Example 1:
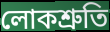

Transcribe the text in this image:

লোকশ্ৰুতি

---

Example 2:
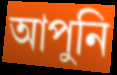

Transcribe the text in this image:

আপুনি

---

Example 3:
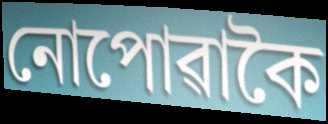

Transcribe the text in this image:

নোপোৱাকৈ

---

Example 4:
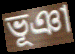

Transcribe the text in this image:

ভূঞা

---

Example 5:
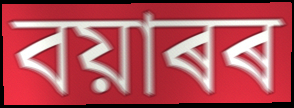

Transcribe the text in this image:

বয়াৰৰ